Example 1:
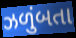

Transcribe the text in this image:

ઝળુંબતા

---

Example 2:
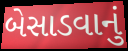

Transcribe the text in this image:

બેસાડવાનું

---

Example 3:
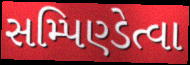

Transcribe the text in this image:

સમ્પિણ્ડેત્વા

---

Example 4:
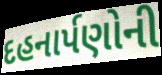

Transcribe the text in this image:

દહનાર્પણોની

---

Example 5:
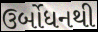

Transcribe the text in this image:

ઉર્બોધનથી